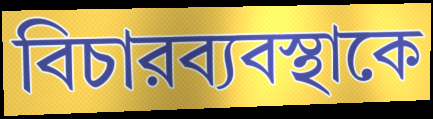
বিচারব্যবস্থাকে